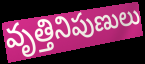
వృత్తినిపుణులు